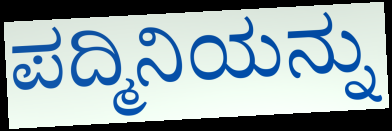
ಪದ್ಮಿನಿಯನ್ನು